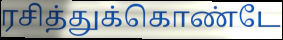
ரசித்துக்கொண்டே